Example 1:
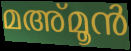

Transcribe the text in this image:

മഅ്മൂൻ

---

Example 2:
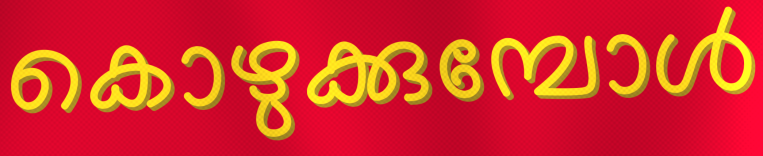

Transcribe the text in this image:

കൊഴുക്കുമ്പോൾ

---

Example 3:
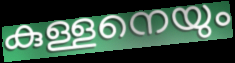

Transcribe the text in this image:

കുള്ളനെയും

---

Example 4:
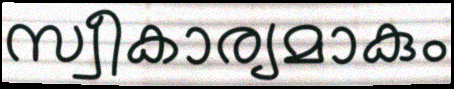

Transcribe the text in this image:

സ്വീകാര്യമാകും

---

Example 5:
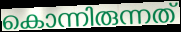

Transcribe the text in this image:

കൊന്നിരുന്നത്